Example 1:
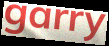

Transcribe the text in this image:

garry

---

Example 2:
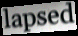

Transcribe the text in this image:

lapsed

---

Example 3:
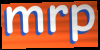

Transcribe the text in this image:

mrp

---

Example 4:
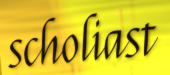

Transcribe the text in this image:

scholiast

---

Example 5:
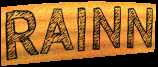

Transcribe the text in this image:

RAINN